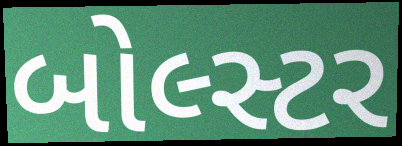
બોલ્સ્ટર